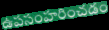
ఉపసంహరించడం